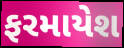
ફરમાયેશ